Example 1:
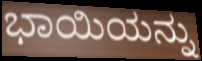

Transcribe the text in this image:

ಭಾಯಿಯನ್ನು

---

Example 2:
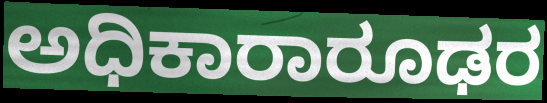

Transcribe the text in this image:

ಅಧಿಕಾರಾರೂಢರ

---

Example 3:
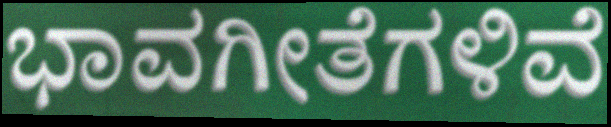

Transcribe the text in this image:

ಭಾವಗೀತೆಗಳಿವೆ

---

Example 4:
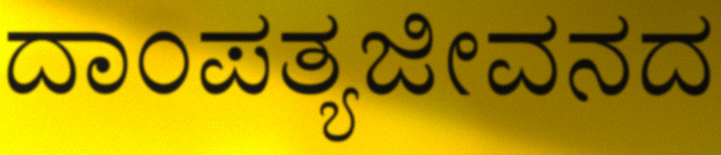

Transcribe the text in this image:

ದಾಂಪತ್ಯಜೀವನದ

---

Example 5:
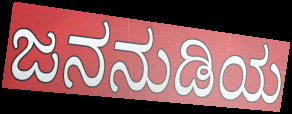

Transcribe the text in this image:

ಜನನುಡಿಯ